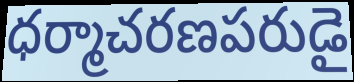
ధర్మాచరణపరుడై